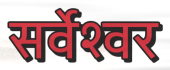
सर्वेश्वर